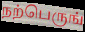
நற்பெருங்